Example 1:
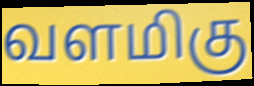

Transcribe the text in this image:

வளமிகு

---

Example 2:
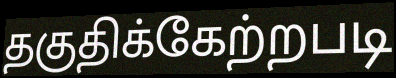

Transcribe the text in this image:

தகுதிக்கேற்றபடி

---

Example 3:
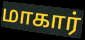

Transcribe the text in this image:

மாகார்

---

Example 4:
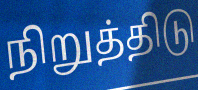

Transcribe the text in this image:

நிறுத்திடு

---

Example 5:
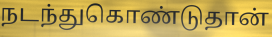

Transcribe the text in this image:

நடந்துகொண்டுதான்